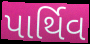
પાર્થિવ